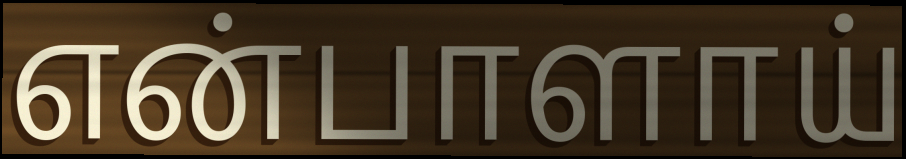
என்பாளாய்